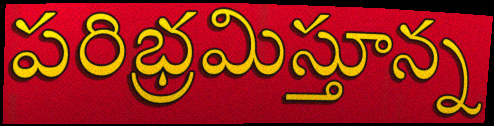
పరిభ్రమిస్తూన్న